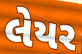
લેયર